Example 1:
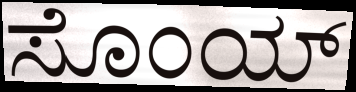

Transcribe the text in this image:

ಸೊಂಯ್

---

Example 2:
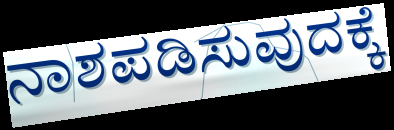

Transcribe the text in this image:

ನಾಶಪಡಿಸುವುದಕ್ಕೆ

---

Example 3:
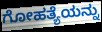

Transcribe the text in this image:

ಗೋಹತ್ಯೆಯನ್ನು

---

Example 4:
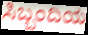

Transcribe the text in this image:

ಸಿಬ್ಬಂದಿಯ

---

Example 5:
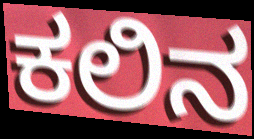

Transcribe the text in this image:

ಕಲಿನ